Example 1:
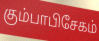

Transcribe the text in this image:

கும்பாபிசேகம்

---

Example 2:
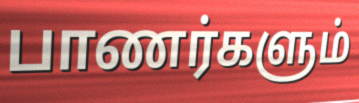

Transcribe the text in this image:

பாணர்களும்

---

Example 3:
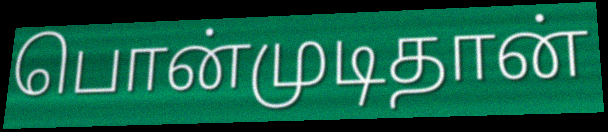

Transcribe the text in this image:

பொன்முடிதான்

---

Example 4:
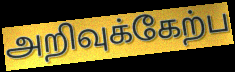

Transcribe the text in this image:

அறிவுக்கேற்ப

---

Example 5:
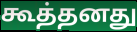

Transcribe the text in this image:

கூத்தனது